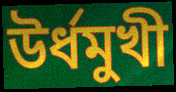
উর্ধমুখী